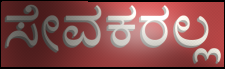
ಸೇವಕರಲ್ಲ